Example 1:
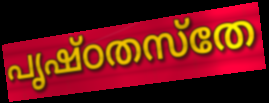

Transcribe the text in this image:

പൃഷ്ഠതസ്തേ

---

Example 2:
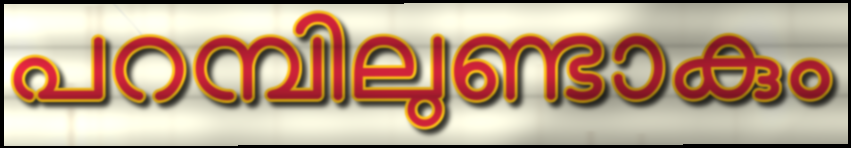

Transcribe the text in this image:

പറമ്പിലുണ്ടാകും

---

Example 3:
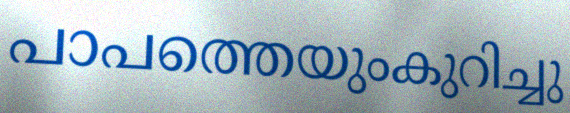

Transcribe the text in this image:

പാപത്തെയുംകുറിച്ചു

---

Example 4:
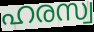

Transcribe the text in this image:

ഹരസ്വ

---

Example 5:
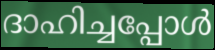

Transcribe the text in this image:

ദാഹിച്ചപ്പോൾ